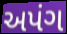
અપંગ